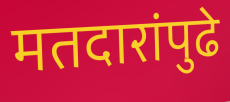
मतदारांपुढे